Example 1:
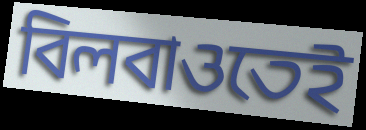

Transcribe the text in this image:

বিলবাওতেই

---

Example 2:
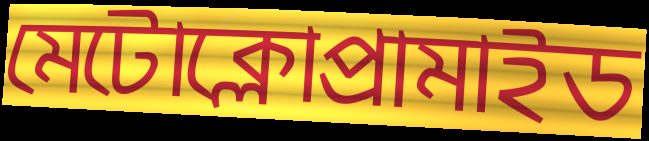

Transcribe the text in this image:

মেটোক্লোপ্রামাইড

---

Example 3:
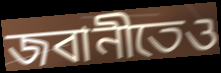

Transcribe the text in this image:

জবানীতেও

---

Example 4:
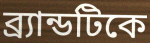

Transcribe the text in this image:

ব্র্যান্ডটিকে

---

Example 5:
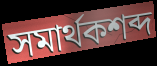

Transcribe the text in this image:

সমার্থকশব্দ